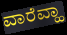
ವಾರೆವ್ಹಾ